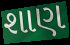
શાણ